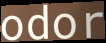
odor